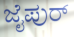
ಜೈಪುರ್